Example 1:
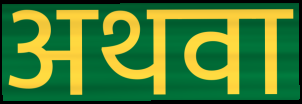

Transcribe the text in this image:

अथवा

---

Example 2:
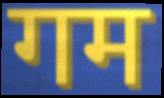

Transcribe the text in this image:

गम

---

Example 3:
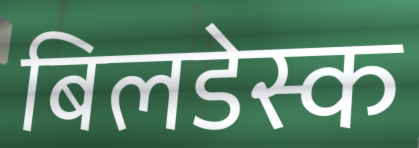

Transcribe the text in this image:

बिलडेस्क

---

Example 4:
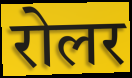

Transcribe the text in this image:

रोलर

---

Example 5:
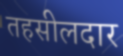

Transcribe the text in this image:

तहसीलदार